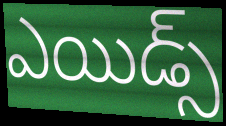
ఎయిడ్స్